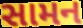
સામન